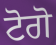
ਟੋਗੋ